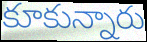
కూకున్నారు